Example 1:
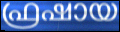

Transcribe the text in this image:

ഫ്രഷായ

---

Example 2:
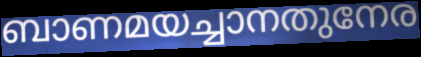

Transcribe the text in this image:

ബാണമയച്ചാനതുനേര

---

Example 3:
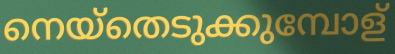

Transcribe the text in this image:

നെയ്തെടുക്കുമ്പോള്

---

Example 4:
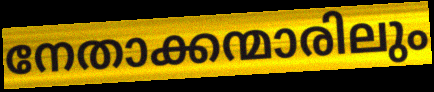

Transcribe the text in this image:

നേതാക്കന്മാരിലും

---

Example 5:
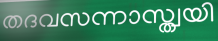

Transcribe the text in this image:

തദവസന്നാസ്ത്വയി